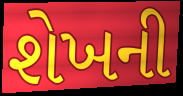
શેખની